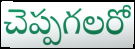
చెప్పగలరో